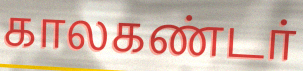
காலகண்டர்